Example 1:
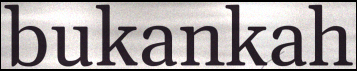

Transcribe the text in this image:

bukankah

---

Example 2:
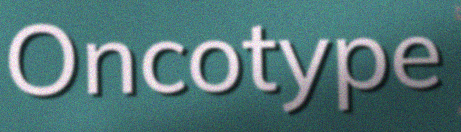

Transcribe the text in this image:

Oncotype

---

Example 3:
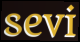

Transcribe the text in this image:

sevi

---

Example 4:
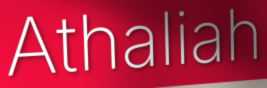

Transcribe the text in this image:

Athaliah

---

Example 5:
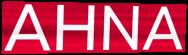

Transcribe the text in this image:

AHNA